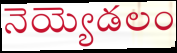
నెయ్యెడలం